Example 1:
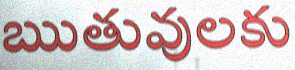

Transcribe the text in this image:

ఋతువులకు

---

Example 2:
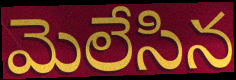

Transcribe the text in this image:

మెలేసిన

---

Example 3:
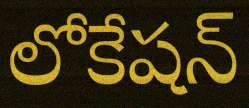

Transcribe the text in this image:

లోకేషన్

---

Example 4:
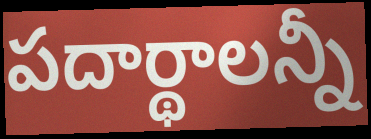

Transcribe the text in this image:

పదార్థాలన్నీ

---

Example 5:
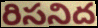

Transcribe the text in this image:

రిసనిద